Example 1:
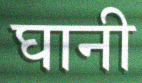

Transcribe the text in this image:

घानी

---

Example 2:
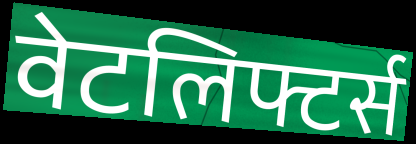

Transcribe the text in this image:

वेटलिफ्टर्स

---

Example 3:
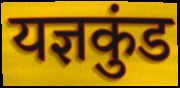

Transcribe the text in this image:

यज्ञकुंड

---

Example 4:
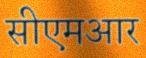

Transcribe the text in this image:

सीएमआर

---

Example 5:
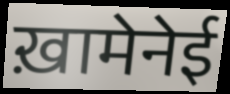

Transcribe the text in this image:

ख़ामेनेई